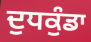
ਦੁਧਕੁੰਡਾ